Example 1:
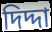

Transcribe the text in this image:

দিদ্দা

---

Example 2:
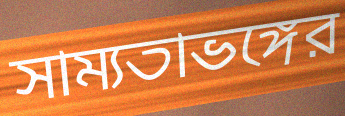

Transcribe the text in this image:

সাম্যতাভঙ্গের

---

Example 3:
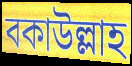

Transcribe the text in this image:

বকাউল্লাহ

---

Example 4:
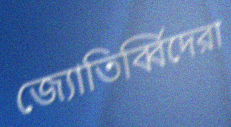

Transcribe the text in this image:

জ্যোতির্ব্বিদেরা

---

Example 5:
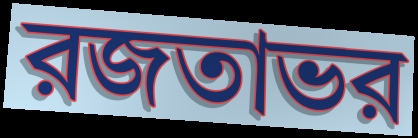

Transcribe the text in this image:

রজতাভর